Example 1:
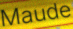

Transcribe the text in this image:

Maude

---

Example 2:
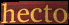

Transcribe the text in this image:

hecto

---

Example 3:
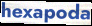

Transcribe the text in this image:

hexapoda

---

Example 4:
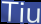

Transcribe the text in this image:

Tiu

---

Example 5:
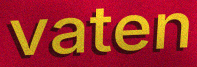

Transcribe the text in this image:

vaten